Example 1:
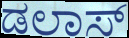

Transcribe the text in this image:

ಡಲಾಸ್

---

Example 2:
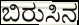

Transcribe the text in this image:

ಬಿರುಸಿನ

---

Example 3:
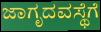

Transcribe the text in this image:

ಜಾಗೃದವಸ್ಥೆಗೆ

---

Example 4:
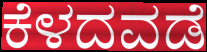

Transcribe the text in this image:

ಕೆಳದವಡೆ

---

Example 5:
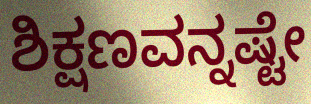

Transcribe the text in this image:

ಶಿಕ್ಷಣವನ್ನಷ್ಟೇ